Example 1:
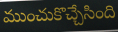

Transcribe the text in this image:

ముంచుకొచ్చేసింది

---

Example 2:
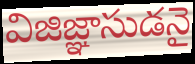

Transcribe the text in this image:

విజిజ్ఞాసుడనై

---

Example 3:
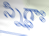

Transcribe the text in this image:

స్నిగ్ధాః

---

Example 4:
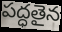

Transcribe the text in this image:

పద్ధతైన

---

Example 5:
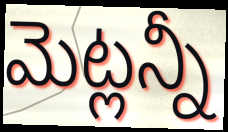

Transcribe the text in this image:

మెట్లన్నీ